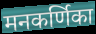
मनकर्णिका